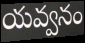
యవ్వనం